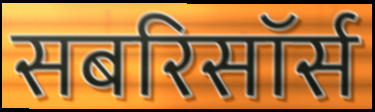
सबरिसॉर्स